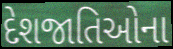
દેશજાતિઓના